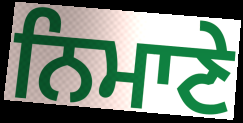
ਨਿਮਾਣੇ